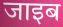
जाइब